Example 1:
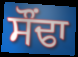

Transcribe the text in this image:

ਸੌਂਢਾ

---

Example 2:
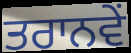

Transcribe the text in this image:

ਤਰਾਨਵੇਂ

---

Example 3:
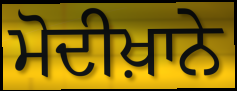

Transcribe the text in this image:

ਮੋਦੀਖ਼ਾਨੇ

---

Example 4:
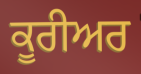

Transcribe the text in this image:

ਕੂਰੀਅਰ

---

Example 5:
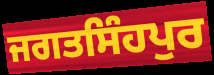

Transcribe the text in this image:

ਜਗਤਸਿੰਹਪੁਰ